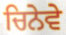
ਚਿਨੇਵੇ